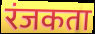
रंजकता